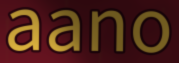
aano